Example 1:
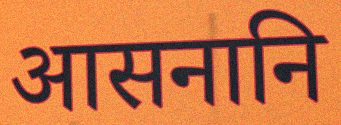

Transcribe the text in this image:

आसनानि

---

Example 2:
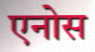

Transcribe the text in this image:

एनोस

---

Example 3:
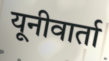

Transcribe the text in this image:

यूनीवार्ता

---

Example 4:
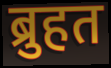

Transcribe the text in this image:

ब्रुहत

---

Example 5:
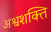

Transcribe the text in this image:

अश्वशक्ति